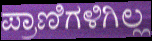
ಪ್ರಾಣಿಗಳಿಗಿಲ್ಲ